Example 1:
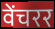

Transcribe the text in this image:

वेंचरर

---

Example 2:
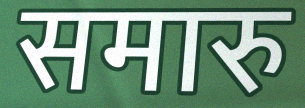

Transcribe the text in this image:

समारु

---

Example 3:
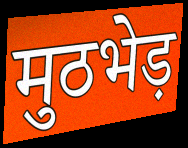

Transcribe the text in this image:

मुठभेड़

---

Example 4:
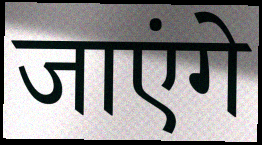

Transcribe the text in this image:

जाएंगे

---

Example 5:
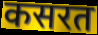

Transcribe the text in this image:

कसरत